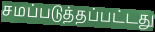
சமப்படுத்தப்பட்டது